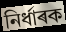
নিৰ্ধাৰক